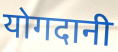
योगदानी